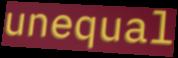
unequal